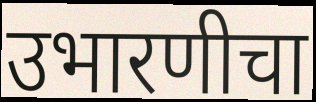
उभारणीचा